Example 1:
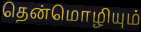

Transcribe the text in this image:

தென்மொழியும்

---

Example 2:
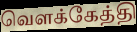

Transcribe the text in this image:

வெளக்கேத்தி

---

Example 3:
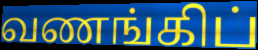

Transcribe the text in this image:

வணங்கிப்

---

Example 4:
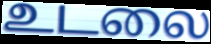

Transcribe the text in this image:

உடலை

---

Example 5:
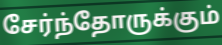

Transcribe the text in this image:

சேர்ந்தோருக்கும்